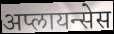
अप्लायन्सेस